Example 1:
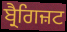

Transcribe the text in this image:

ਬ੍ਰੈਗਿਜ਼ਟ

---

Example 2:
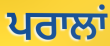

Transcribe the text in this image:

ਪਰਾਲਾਂ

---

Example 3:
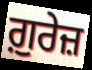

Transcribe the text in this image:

ਗ਼ੁਰੇਜ਼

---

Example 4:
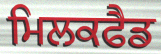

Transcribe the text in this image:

ਮਿਲਕਫੈਡ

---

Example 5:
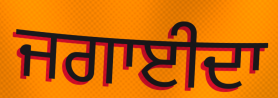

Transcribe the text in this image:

ਜਗਾਈਦਾ